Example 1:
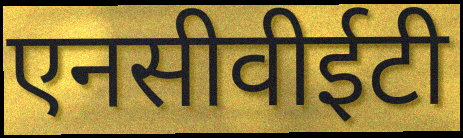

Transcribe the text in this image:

एनसीवीईटी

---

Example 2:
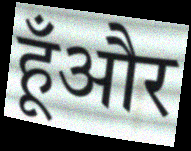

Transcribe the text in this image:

हूँऔर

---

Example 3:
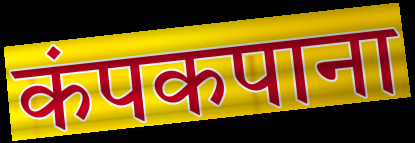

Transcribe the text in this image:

कंपकपाना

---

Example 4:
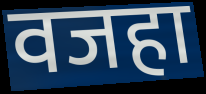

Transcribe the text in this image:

वजहा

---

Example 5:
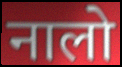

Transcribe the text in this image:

नालो